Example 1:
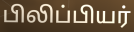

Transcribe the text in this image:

பிலிப்பியர்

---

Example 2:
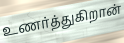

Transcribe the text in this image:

உணர்த்துகிறான்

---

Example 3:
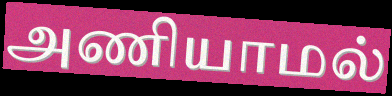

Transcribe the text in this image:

அணியாமல்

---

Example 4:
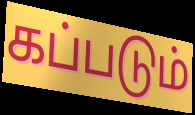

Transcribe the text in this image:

கப்படும்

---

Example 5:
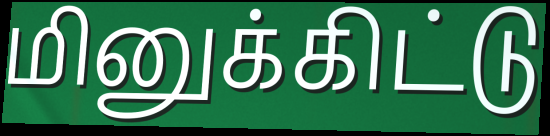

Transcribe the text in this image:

மினுக்கிட்டு